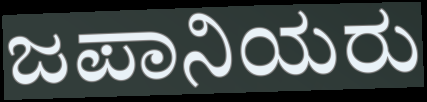
ಜಪಾನಿಯರು